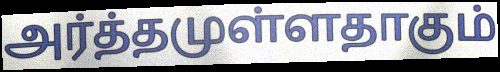
அர்த்தமுள்ளதாகும்